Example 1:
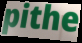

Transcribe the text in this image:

pithe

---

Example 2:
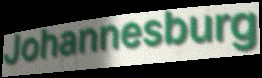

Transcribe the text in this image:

Johannesburg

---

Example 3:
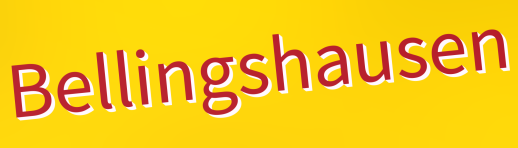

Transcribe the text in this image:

Bellingshausen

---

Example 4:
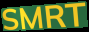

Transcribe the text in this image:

SMRT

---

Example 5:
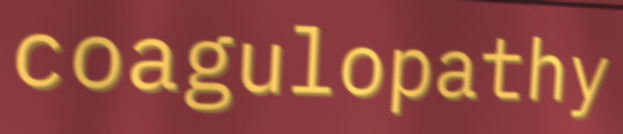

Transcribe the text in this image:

coagulopathy